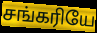
சங்கரியே